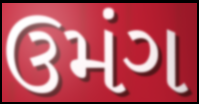
ઉમંગ